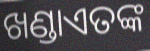
ଖଣ୍ଡାଏତଙ୍କ